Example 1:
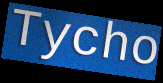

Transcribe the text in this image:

Tycho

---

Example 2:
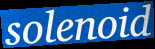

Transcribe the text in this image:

solenoid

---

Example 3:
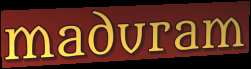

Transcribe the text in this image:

maduram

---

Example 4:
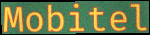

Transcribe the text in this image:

Mobitel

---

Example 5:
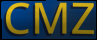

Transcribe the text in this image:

CMZ